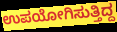
ಉಪಯೋಗಿಸುತ್ತಿದ್ದ